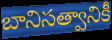
బానిసత్వానికీ